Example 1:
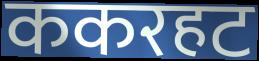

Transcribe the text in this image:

ककरहट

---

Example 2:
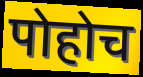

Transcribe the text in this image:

पोहोच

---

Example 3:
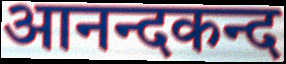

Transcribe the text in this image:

आनन्दकन्द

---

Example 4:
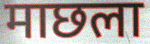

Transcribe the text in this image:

माछला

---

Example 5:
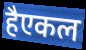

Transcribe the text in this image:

हैएकल